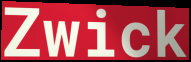
Zwick